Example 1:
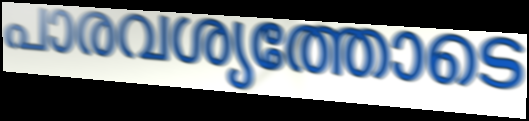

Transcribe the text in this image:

പാരവശ്യത്തോടെ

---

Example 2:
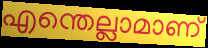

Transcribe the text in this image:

എന്തെല്ലാമാണ്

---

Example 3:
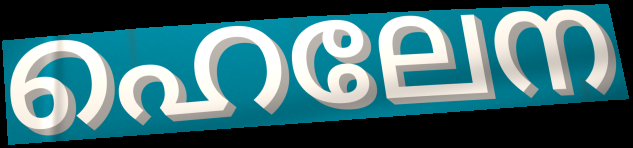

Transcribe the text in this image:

ഹെലേന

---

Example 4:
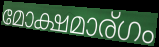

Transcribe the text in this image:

മോക്ഷമാര്ഗം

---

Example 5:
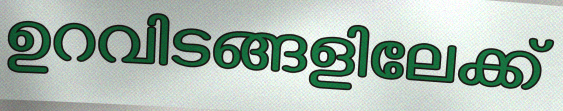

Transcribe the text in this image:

ഉറവിടങ്ങളിലേക്ക്